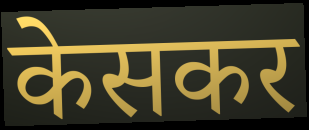
केसकर